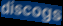
discogs